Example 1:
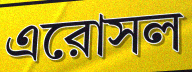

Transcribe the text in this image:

এরোসল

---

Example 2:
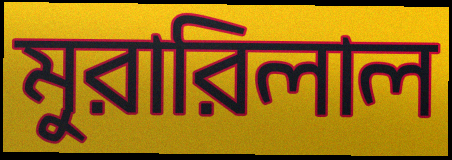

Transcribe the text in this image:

মুরারিলাল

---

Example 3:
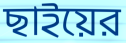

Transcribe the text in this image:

ছাইয়ের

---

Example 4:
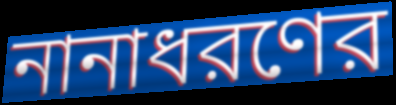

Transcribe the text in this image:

নানাধরণের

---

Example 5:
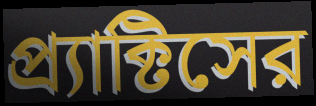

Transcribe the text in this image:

প্র্যাক্টিসের